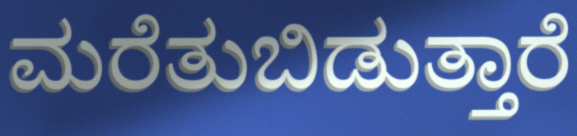
ಮರೆತುಬಿಡುತ್ತಾರೆ